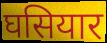
घसियार